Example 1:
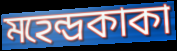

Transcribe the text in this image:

মহেন্দ্রকাকা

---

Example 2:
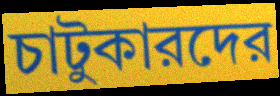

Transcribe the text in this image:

চাটুকারদের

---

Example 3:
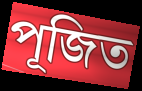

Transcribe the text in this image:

পূজিত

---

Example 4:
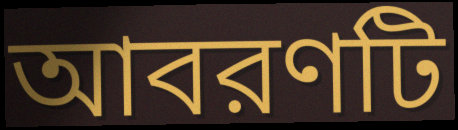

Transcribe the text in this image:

আবরণটি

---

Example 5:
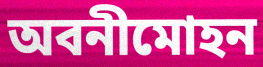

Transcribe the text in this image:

অবনীমোহন